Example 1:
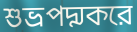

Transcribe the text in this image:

শুভ্রপদ্মকরে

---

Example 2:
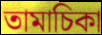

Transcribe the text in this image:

তামাচিকা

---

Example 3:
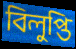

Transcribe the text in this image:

বিলুপ্তি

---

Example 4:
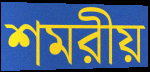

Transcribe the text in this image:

শমরীয়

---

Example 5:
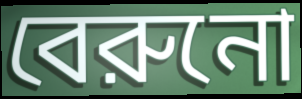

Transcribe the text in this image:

বেরুনো